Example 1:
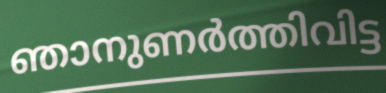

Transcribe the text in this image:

ഞാനുണർത്തിവിട്ട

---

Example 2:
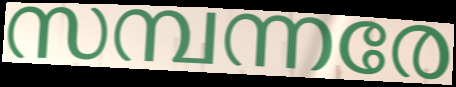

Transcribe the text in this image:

സമ്പന്നരേ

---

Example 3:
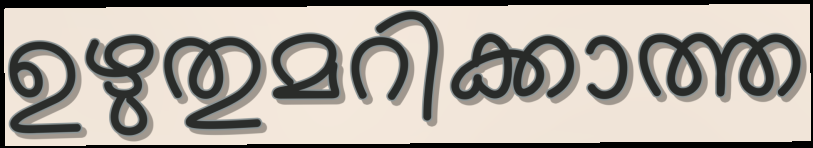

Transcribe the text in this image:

ഉഴുതുമറിക്കാത്ത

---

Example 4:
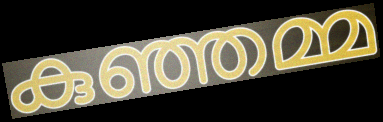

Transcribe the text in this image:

കുഞ്ഞമ്മ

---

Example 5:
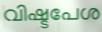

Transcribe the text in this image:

വിഷ്ടപേശ